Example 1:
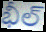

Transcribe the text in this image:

భీల్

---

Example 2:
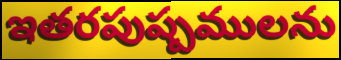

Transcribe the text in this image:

ఇతరపుష్పములను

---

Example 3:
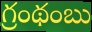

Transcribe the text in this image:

గ్రంథంబు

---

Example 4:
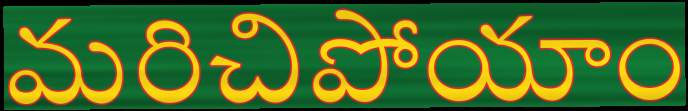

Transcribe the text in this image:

మరిచిపోయాం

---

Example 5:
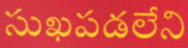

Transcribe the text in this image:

సుఖపడలేని